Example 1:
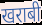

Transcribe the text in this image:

खराबी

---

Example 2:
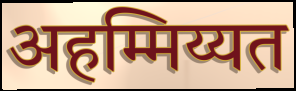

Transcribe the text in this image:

अहम्मिय्यत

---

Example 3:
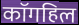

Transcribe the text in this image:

कॉगहिल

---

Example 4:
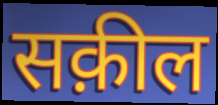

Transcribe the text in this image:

सक़ील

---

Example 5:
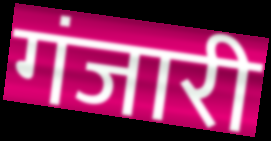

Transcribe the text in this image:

गंजारी